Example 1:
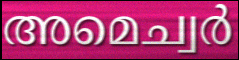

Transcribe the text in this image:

അമെച്വർ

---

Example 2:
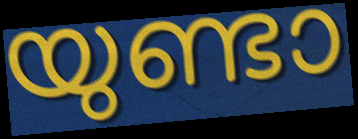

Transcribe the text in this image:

യുണ്ടാ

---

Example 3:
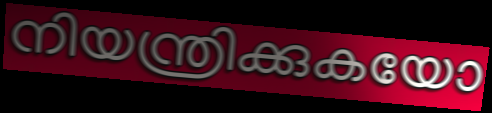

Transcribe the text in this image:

നിയന്ത്രിക്കുകയോ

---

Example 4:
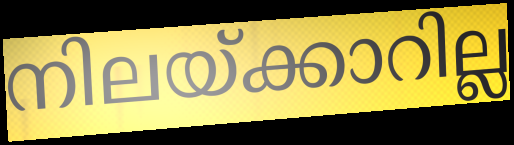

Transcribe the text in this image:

നിലയ്ക്കാറില്ല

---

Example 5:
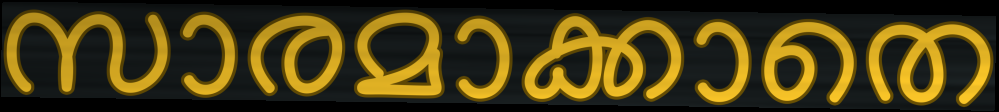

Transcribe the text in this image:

സാരമാക്കാതെ